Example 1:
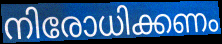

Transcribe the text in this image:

നിരോധിക്കണം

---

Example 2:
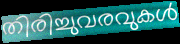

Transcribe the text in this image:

തിരിച്ചുവരവുകൾ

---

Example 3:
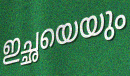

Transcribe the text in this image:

ഇച്ഛയെയും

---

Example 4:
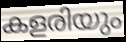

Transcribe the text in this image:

കളരിയും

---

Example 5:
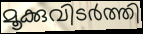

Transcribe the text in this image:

മൂക്കുവിടർത്തി